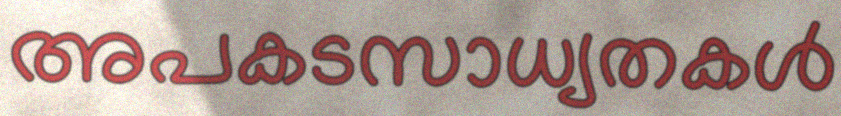
അപകടസാധ്യതകൾ